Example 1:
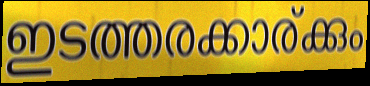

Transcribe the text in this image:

ഇടത്തരക്കാര്ക്കും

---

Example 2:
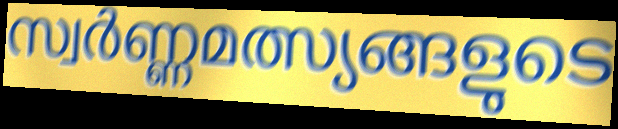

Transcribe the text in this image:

സ്വർണ്ണമത്സ്യങ്ങളുടെ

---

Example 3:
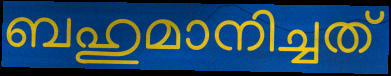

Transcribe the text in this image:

ബഹുമാനിച്ചത്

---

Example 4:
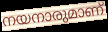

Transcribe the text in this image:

നയനാരുമാണ്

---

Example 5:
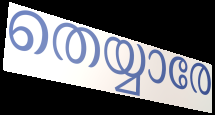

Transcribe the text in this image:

തെയ്യാരേ